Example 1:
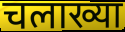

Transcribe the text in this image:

चलाख्या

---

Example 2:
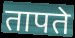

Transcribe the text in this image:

तापते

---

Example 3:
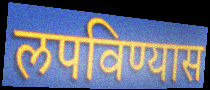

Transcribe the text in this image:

लपविण्यास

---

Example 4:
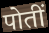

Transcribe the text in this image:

पोतीं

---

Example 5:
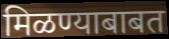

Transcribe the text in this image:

मिळण्याबाबत